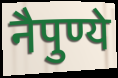
नैपुण्ये